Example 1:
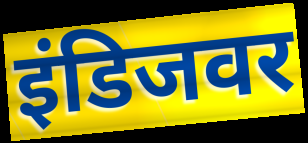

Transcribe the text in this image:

इंडिजवर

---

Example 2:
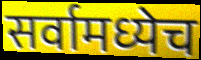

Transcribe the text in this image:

सर्वामध्येच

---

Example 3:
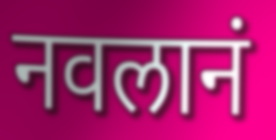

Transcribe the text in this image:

नवलानं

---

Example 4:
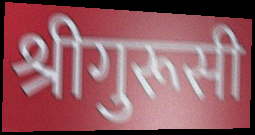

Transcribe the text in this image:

श्रीगुरूसी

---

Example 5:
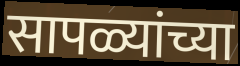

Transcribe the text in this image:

सापळ्यांच्या